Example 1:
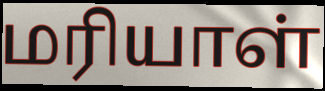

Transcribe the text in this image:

மரியாள்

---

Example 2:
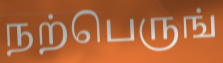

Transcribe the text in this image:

நற்பெருங்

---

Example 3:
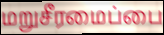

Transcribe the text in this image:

மறுசீரமைப்பை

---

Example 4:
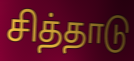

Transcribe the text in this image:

சித்தாடு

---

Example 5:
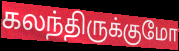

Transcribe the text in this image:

கலந்திருக்குமோ